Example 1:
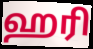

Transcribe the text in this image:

ஹரி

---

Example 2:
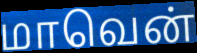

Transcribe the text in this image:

மாவென்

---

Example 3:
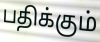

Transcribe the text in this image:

பதிக்கும்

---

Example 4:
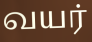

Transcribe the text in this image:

வயர்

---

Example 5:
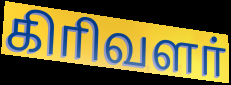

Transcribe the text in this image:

கிரிவளர்